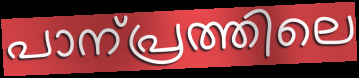
പാന്പ്രത്തിലെ